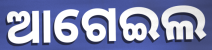
ଆଗେଇଲ